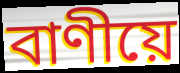
বাণীয়ে